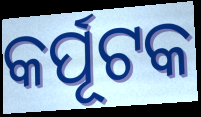
କର୍ପୂଟକ